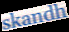
skandh